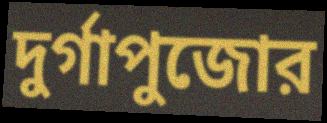
দুর্গাপুজোর